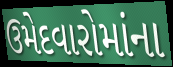
ઉમેદવારોમાંના